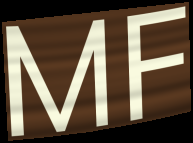
MF